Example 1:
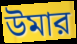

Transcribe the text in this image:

উমার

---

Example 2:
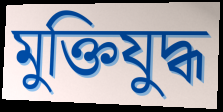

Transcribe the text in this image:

মুক্তিযুদ্ধ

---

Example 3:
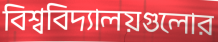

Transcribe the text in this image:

বিশ্ববিদ্যালয়গুলোর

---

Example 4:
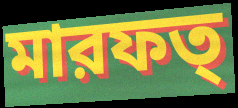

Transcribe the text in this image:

মারফত্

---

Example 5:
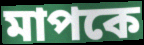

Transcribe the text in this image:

মাপকে